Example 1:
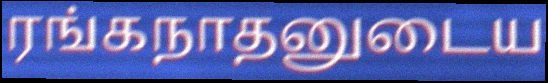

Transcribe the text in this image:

ரங்கநாதனுடைய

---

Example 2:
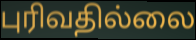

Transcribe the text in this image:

புரிவதில்லை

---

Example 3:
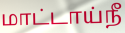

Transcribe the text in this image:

மாட்டாய்நீ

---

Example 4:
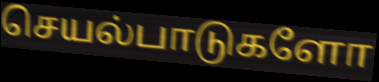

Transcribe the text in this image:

செயல்பாடுகளோ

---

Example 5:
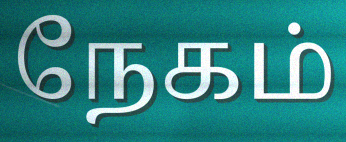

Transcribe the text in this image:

நேகம்